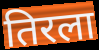
तिरला